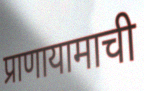
प्राणायामाची